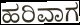
ಹರಿವಾಗ